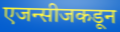
एजन्सीजकडून